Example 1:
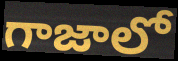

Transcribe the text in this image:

గాజాలో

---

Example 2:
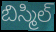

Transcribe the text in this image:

బిస్మిల్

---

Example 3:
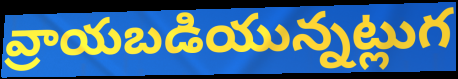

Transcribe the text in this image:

వ్రాయబడియున్నట్లుగ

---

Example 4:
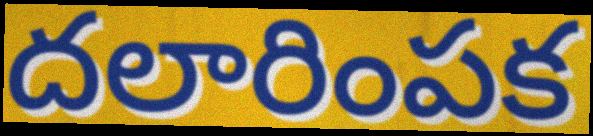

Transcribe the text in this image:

దలారింపక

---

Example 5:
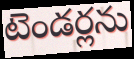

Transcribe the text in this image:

టెండర్లను